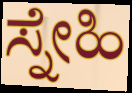
ಸ್ನೇಹಿ